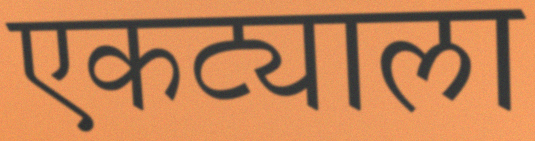
एकट्याला